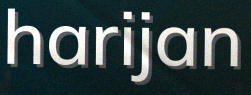
harijan